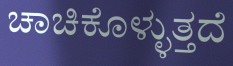
ಚಾಚಿಕೊಳ್ಳುತ್ತದೆ